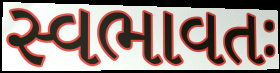
સ્વભાવતઃ